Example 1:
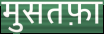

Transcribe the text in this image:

मुसतफ़ा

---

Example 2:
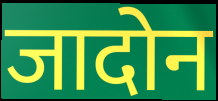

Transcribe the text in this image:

जादोन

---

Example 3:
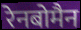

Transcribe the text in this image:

रेनबोमैन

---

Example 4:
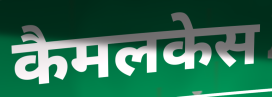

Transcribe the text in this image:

कैमलकेस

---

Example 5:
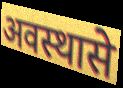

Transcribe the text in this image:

अवस्थासे